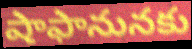
షాఫానునకు